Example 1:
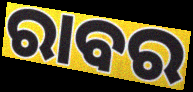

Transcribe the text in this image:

ରାବର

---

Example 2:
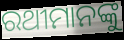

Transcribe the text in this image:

ରଥୀମାନଙ୍କୁ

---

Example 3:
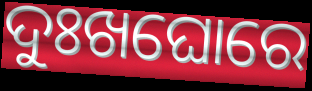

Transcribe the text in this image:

ଦୁଃଖଘୋରେ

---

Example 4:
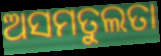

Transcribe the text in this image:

ଅସମତୁଲତା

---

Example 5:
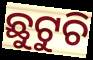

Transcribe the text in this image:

ଛୁଟୁଚି